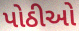
પોઠીઓ